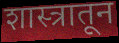
शास्त्रातून